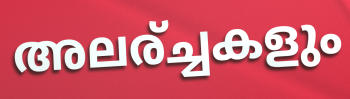
അലര്ച്ചകളും